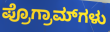
ಪ್ರೊಗ್ರಾಮ್‌ಗಳು